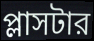
প্লাসটার